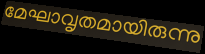
മേഘാവൃതമായിരുന്നു